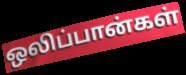
ஒலிப்பான்கள்